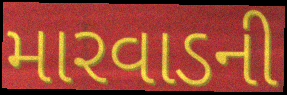
મારવાડની